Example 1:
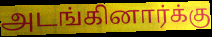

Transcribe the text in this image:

அடங்கினார்க்கு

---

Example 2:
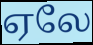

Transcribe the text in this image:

ஏலே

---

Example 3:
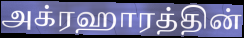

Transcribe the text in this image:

அக்ரஹாரத்தின்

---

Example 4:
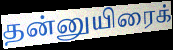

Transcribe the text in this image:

தன்னுயிரைக்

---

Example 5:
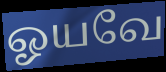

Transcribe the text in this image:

ஓயவே